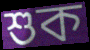
শুক